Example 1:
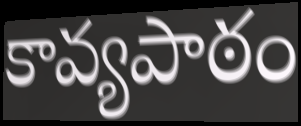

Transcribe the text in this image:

కావ్యపాఠం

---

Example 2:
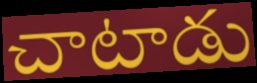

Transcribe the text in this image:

చాటాడు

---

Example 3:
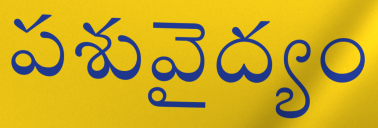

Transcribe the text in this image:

పశువైద్యం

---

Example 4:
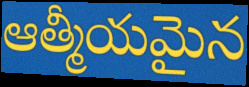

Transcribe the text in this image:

ఆత్మీయమైన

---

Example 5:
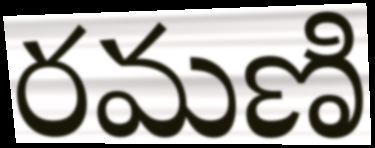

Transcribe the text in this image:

రమణి